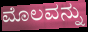
ಮೊಲವನ್ನು